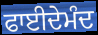
ਫਾਈਦੇਮੰਦ